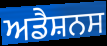
ਅਡੈਸ਼ਨਸ